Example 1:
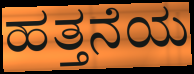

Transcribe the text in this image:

ಹತ್ತನೆಯ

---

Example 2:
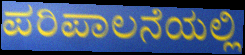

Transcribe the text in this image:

ಪರಿಪಾಲನೆಯಲ್ಲಿ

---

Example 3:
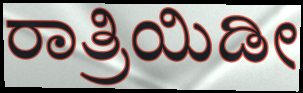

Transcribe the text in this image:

ರಾತ್ರಿಯಿಡೀ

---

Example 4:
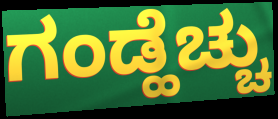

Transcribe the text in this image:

ಗಂಡ್ಹೆಚ್ಚು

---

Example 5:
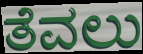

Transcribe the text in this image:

ತೆವಲು